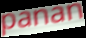
panan